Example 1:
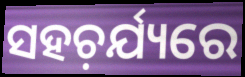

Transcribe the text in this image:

ସହଚ଼ର୍ଯ୍ୟରେ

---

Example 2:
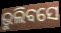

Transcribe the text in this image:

ଭୁଲିବସେ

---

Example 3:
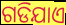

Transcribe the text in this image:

ଗଡିଯାଏ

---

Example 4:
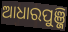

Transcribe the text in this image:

ଆଧାରପୁଞ୍ଜି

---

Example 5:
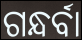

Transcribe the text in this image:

ଗନ୍ଧର୍ବା